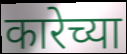
कारेच्या